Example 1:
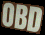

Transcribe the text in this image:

OBD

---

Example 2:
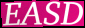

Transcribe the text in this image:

EASD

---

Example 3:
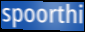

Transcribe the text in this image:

spoorthi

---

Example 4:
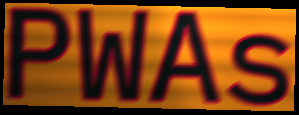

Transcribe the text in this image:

PWAs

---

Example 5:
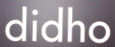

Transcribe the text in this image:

didho